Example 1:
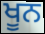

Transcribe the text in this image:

ਖੂਨ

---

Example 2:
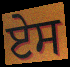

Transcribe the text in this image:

ਏਸ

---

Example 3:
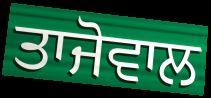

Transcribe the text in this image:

ਤਾਜੋਵਾਲ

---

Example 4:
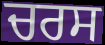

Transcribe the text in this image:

ਚਰਸ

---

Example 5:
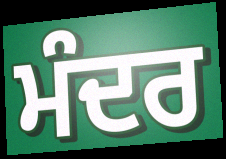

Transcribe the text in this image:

ਮੰਦਰ